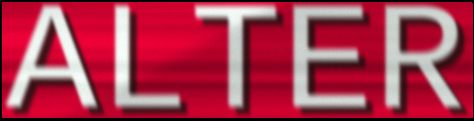
ALTER